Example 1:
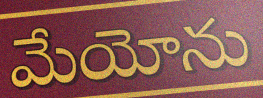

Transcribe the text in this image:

మేయోను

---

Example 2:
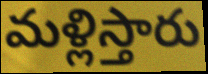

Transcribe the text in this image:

మళ్లిస్తారు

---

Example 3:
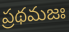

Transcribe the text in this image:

ప్రథమజః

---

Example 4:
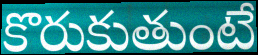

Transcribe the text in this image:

కొరుకుతుంటే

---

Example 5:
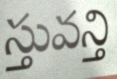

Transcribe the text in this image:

స్తువన్తి